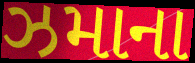
ઝમાના